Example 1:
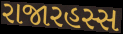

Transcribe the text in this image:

રાજારહસ્સ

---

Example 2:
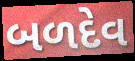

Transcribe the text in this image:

બળદેવ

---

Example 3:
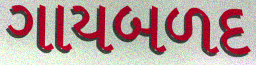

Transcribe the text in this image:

ગાયબળદ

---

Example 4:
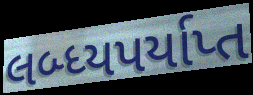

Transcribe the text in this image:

લબ્ધ્યપર્યાપ્ત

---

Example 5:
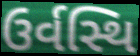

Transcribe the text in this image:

ઉર્વસ્થિ